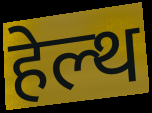
हेल्‍थ